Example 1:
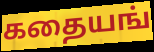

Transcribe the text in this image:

கதையங்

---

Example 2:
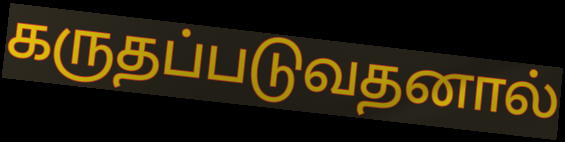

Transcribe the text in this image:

கருதப்படுவதனால்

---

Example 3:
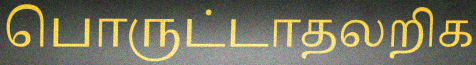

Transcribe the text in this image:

பொருட்டாதலறிக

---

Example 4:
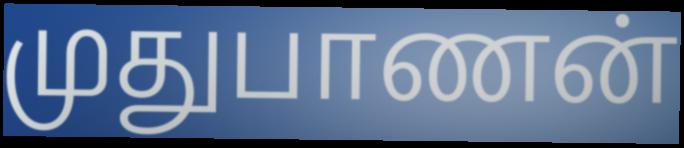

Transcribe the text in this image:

முதுபாணன்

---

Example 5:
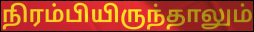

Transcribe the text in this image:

நிரம்பியிருந்தாலும்